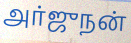
அர்ஜுநன்